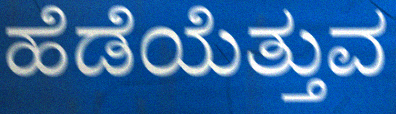
ಹೆಡೆಯೆತ್ತುವ